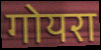
गोयरा